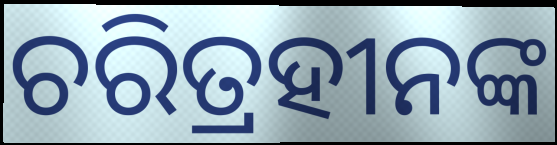
ଚରିତ୍ରହୀନଙ୍କ